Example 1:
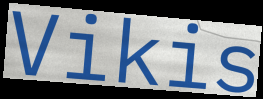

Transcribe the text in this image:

Vikis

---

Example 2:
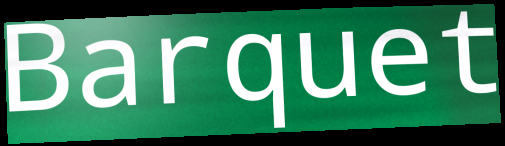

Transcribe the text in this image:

Barquet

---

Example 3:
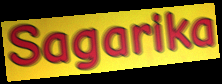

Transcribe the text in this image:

Sagarika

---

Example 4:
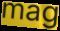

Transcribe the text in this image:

mag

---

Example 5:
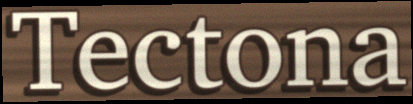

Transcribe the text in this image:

Tectona